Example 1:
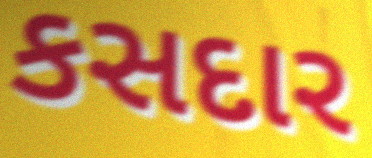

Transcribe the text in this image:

કસદાર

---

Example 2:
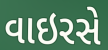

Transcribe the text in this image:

વાઇરસે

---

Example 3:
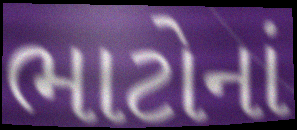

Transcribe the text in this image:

ભાટોનાં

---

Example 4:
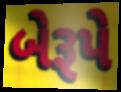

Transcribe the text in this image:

બેરૂપે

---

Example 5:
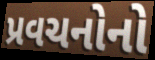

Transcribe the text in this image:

પ્રવચનોનો